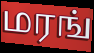
மரங்